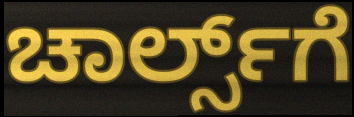
ಚಾರ್ಲ್ಸ್‌ಗೆ